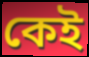
কেই